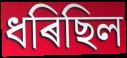
ধৰিছিল